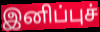
இனிப்புச்